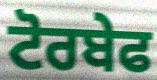
ਟੋਰਬੇਫ